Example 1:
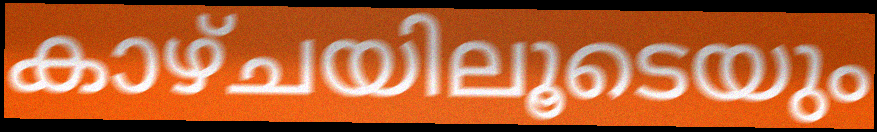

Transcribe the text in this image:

കാഴ്ചയിലൂടെയും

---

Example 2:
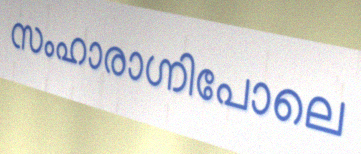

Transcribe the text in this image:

സംഹാരാഗ്നിപോലെ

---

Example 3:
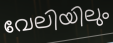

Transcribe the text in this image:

വേലിയിലും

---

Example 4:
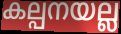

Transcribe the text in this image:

കല്പനയല്ല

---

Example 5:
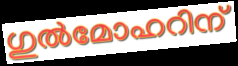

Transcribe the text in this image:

ഗുൽമോഹറിന്